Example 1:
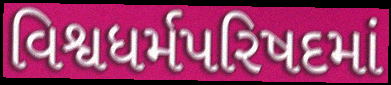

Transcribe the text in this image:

વિશ્વધર્મપરિષદમાં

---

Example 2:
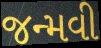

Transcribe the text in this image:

જન્મવી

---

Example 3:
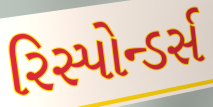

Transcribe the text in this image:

રિસ્પોન્ડર્સ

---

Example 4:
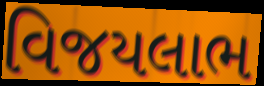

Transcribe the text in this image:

વિજયલાભ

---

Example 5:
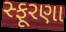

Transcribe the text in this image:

સ્ફૂરણા